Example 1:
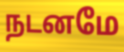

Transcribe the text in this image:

நடனமே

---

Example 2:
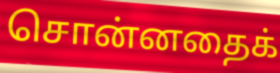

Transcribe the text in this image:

சொன்னதைக்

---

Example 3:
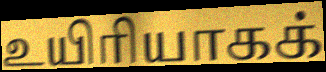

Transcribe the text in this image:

உயிரியாகக்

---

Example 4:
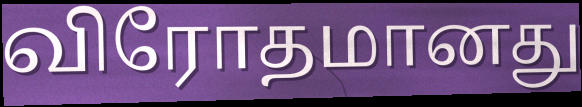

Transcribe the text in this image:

விரோதமானது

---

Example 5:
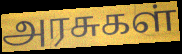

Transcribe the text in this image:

அரசுகள்